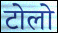
टोलो